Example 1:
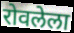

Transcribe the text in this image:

रोवलेला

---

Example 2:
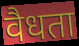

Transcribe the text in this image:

वैधता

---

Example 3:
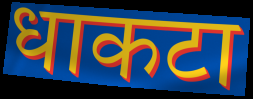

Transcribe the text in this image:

धाकटा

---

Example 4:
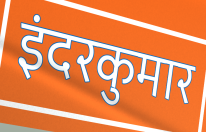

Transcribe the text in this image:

इंदरकुमार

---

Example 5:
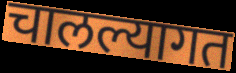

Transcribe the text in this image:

चालल्यागत